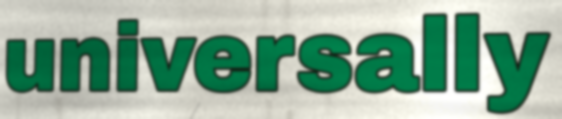
universally